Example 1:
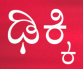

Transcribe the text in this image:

ಢಿಕ್ಕಿ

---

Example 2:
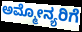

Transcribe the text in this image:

ಅಮ್ಮೋನ್ಯರಿಗೆ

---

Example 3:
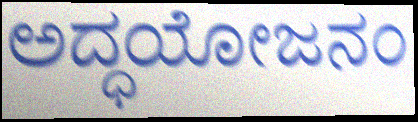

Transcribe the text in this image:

ಅದ್ಧಯೋಜನಂ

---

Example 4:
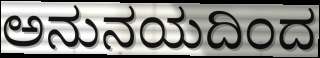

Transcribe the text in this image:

ಅನುನಯದಿಂದ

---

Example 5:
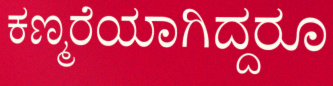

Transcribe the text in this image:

ಕಣ್ಮರೆಯಾಗಿದ್ದರೂ